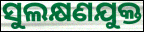
ସୁଲକ୍ଷଣଯୁକ୍ତ